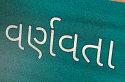
વર્ણવતા